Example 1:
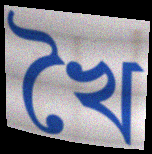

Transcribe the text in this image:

খৈ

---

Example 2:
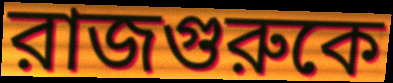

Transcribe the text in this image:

রাজগুরুকে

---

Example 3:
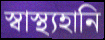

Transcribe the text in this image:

স্বাস্থ্যহানি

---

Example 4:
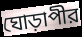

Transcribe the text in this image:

ঘোড়াপীর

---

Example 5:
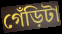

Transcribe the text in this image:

গেঁড়িটা